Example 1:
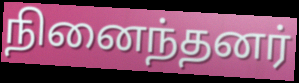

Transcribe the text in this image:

நினைந்தனர்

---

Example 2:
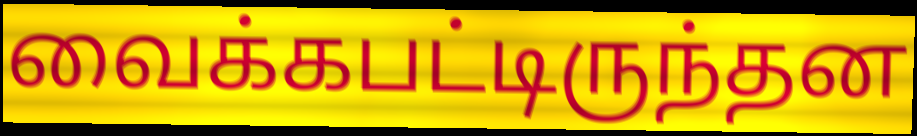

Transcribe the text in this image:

வைக்கபட்டிருந்தன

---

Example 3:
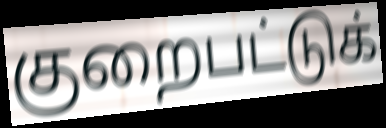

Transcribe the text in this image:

குறைபட்டுக்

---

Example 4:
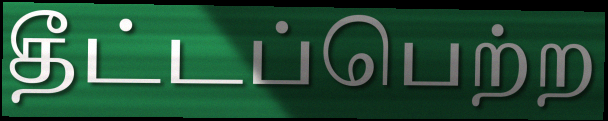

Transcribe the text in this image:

தீட்டப்பெற்ற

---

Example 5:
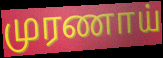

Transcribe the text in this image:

முரணாய்